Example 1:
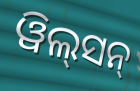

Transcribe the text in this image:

ୱିଲ୍‌ସନ୍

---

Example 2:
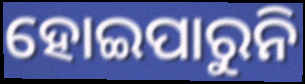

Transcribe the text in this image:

ହୋଇପାରୁନି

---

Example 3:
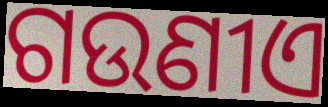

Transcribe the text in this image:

ଗଉଣୀଏ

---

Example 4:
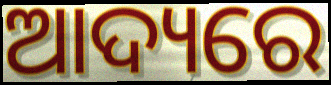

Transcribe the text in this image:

ଆଦ୍ୟରେ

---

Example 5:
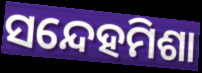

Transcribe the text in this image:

ସନ୍ଦେହମିଶା